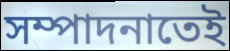
সম্পাদনাতেই